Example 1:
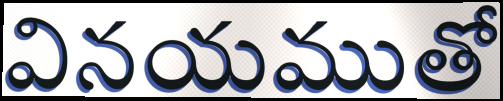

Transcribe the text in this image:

వినయముతో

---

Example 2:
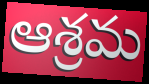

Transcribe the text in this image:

ఆశ్రమ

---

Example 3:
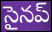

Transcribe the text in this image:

సైనప్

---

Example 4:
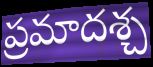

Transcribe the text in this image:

ప్రమాదశ్చ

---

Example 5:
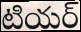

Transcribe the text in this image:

టియర్